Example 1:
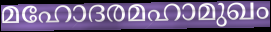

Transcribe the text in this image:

മഹോദരമഹാമുഖം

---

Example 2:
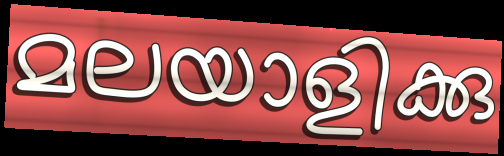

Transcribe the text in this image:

മലയാളിക്കു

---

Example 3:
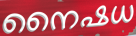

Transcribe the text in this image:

നൈഷധ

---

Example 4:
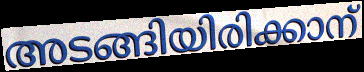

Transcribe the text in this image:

അടങ്ങിയിരിക്കാന്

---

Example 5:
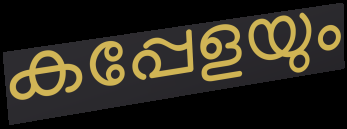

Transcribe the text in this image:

കപ്പേളയും